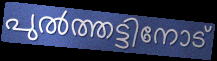
പുൽത്തട്ടിനോട്